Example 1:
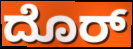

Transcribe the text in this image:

ದೊರ್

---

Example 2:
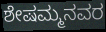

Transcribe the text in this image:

ಶೇಷಮ್ಮನವರ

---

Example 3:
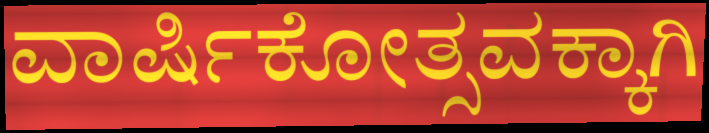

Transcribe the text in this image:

ವಾರ್ಷಿಕೋತ್ಸವಕ್ಕಾಗಿ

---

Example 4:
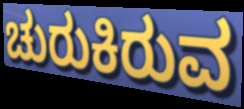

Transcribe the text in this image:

ಚುರುಕಿರುವ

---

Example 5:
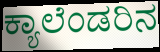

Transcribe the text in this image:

ಕ್ಯಾಲೆಂಡರಿನ